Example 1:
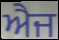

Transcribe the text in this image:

ਐਜ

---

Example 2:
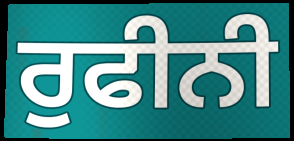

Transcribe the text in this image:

ਰੁਫੀਨੀ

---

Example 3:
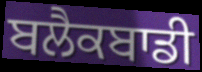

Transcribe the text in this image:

ਬਲੈਕਬਾਡੀ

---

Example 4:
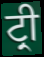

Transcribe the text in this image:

ਟ੍ਰੀ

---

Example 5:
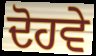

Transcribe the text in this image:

ਦੋਹਵੇ